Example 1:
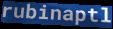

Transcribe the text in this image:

rubinaptl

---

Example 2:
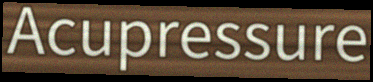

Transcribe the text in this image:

Acupressure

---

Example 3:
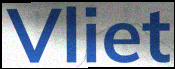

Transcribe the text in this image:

Vliet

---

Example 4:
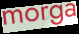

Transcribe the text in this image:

morga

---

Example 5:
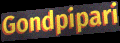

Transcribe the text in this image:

Gondpipari